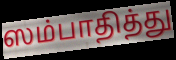
ஸம்பாதித்து